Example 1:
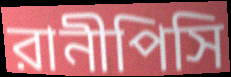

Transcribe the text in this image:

রানীপিসি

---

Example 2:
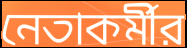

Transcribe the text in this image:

নেতাকর্মীর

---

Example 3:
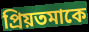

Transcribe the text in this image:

প্রিয়তমাকে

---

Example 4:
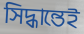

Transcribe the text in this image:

সিদ্ধান্তেই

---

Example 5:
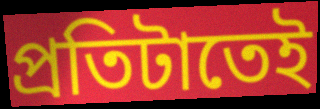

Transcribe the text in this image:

প্রতিটাতেই